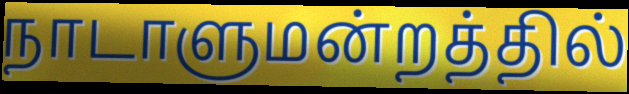
நாடாளுமன்றத்தில்